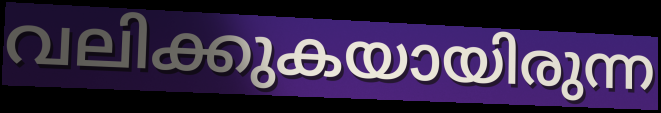
വലിക്കുകയായിരുന്ന